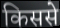
किससे